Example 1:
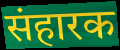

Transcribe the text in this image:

संहारक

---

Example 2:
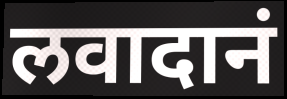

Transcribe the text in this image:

लवादानं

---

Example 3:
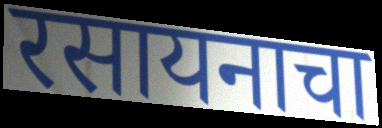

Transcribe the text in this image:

रसायनाचा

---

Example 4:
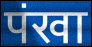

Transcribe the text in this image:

पंखा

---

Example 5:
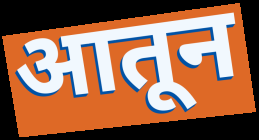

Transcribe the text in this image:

आतून